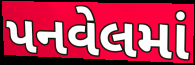
પનવેલમાં